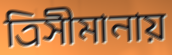
ত্রিসীমানায়